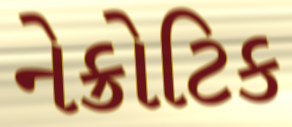
નેક્રોટિક